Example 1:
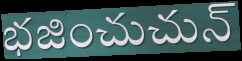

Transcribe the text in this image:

భజించుచున్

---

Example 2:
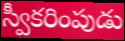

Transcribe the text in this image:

స్వీకరింపుడు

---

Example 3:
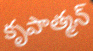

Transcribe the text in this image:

కృపాత్మన్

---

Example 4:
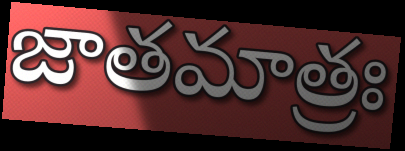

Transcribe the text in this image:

జాతమాత్రః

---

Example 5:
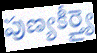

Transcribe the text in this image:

పుణ్యకీర్త్యై